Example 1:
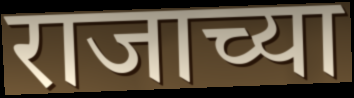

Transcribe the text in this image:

राजाच्या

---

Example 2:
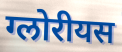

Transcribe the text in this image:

ग्लोरीयस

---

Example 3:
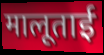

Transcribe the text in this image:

मालूताई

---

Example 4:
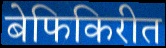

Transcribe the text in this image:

बेफिकिरीत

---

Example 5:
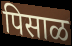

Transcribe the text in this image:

पिसाळ